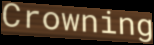
Crowning